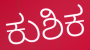
ಕುಶಿಕ